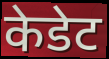
केडेट